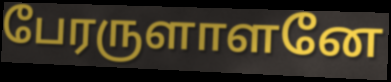
பேரருளாளனே